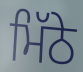
ਮਿੱਠੇ